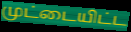
முட்டையிட்ட